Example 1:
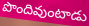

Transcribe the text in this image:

పొందివుంటాడు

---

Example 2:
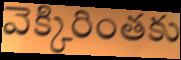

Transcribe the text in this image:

వెక్కిరింతకు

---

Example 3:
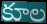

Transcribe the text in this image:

కూల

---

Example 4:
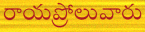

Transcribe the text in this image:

రాయప్రోలువారు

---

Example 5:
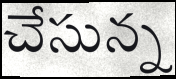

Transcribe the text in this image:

చేసున్న